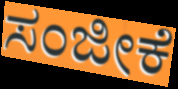
ಸಂಜೀಕೆ